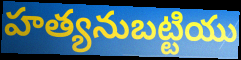
హత్యనుబట్టియు